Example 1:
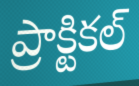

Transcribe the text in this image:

ప్రాక్టికల్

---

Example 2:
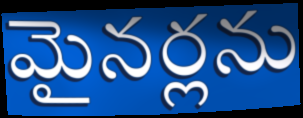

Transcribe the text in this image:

మైనర్లను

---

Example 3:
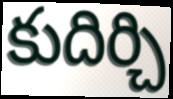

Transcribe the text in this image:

కుదిర్చి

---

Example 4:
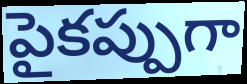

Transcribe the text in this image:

పైకప్పుగా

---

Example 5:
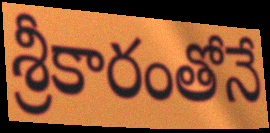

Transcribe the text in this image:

శ్రీకారంతోనే